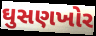
ઘુસણખોર